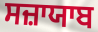
ਸਜ਼ਾਯਾਬ